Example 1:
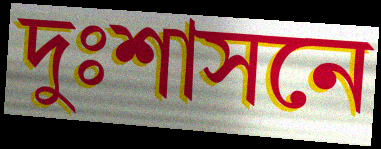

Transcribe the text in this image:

দুঃশাসনে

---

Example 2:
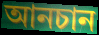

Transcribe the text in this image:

আনচান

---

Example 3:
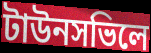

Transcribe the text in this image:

টাউনসভিলে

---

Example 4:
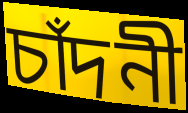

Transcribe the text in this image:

চাঁদনী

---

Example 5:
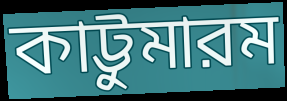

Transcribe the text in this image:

কাট্টুমারম